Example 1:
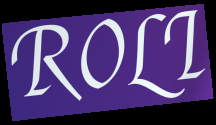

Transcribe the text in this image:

ROLI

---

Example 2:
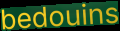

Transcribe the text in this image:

bedouins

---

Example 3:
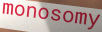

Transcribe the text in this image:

monosomy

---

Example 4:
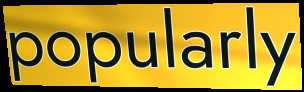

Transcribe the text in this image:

popularly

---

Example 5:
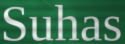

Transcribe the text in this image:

Suhas